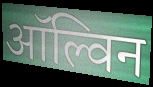
ऑल्विन